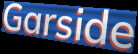
Garside